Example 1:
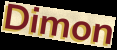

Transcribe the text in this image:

Dimon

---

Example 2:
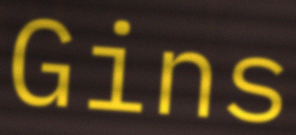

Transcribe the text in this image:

Gins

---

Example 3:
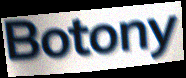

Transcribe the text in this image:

Botony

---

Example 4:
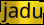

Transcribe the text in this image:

jadu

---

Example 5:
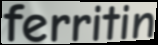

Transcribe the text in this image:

ferritin